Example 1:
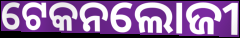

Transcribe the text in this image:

ଟେକନଲୋଜୀ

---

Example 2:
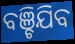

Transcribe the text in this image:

ବଞ୍ଚିଯିବ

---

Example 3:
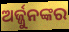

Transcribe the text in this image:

ଅର୍ଜ୍ଜୁନଙ୍କର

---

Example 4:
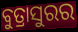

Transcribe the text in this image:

ବୁତ୍ରାସୁରର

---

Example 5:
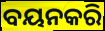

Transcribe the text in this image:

ବୟନକରି